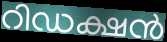
റിഡക്ഷൻ